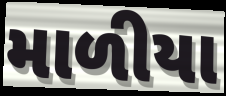
માળીયા